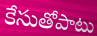
కేసుతోపాటు